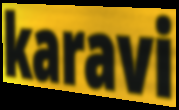
karavi